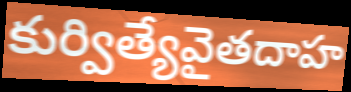
కుర్విత్యేవైతదాహ